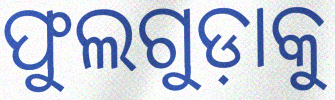
ଫୁଲଗୁଡ଼ାକୁ